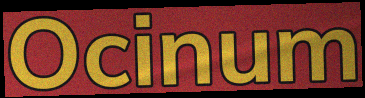
Ocinum